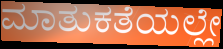
ಮಾತುಕತೆಯಲ್ಲೇ